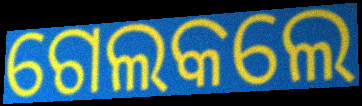
ଗେଲକଲେ